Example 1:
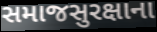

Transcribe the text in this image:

સમાજસુરક્ષાના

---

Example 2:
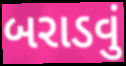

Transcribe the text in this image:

બરાડવું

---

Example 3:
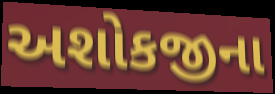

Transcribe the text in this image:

અશોકજીના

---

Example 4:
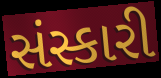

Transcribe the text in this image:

સંસ્કારી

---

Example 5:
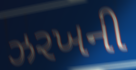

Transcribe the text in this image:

ઝરખની